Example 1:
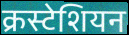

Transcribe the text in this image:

क्रस्टेशियन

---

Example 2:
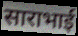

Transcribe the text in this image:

साराभाई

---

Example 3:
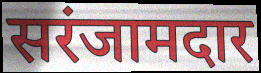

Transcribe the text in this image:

सरंजामदार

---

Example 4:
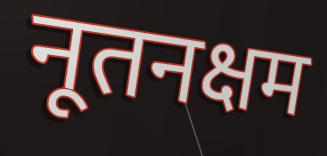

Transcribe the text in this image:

नूतनक्षम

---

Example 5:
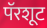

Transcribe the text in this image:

पॅरशूट